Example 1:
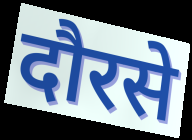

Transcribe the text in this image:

दौरसे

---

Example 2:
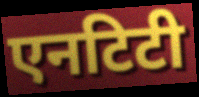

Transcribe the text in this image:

एनटिटी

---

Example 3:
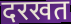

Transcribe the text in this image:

दरखत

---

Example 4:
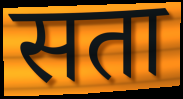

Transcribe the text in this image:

सता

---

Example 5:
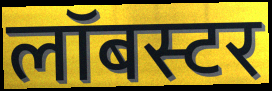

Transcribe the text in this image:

लॉबस्टर